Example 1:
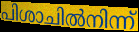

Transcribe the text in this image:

പിശാചിൽനിന്ന്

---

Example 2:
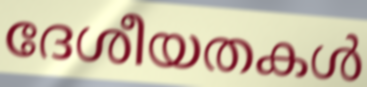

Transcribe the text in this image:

ദേശീയതകൾ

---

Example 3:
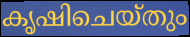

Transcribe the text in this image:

കൃഷിചെയ്തും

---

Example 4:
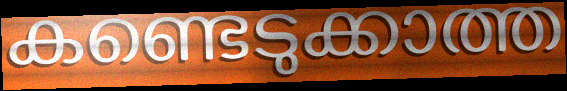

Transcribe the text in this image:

കണ്ടെടുക്കാത്ത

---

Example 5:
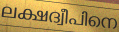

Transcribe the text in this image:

ലക്ഷദ്വീപിനെ